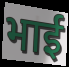
भार्ई